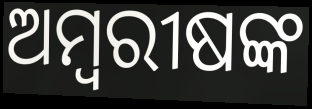
ଅମ୍ବରୀଷଙ୍କ